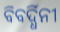
ବିବର୍ଦ୍ଧିନୀ